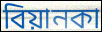
বিয়ানকা